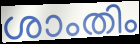
ശാംതിം